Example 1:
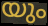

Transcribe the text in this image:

യും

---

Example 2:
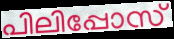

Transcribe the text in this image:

പിലിപ്പോസ്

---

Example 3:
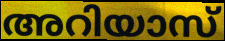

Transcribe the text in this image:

അറിയാസ്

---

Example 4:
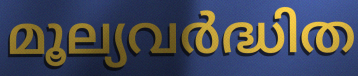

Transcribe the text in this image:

മൂല്യവർദ്ധിത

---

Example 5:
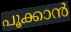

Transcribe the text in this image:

പൂക്കാൻ